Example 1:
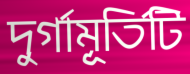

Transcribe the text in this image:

দুর্গামূর্তিটি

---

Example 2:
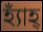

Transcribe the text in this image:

হ্যাঁহ্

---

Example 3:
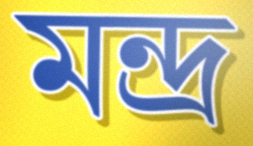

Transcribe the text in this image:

মন্দ্র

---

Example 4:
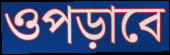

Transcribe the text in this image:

ওপড়াবে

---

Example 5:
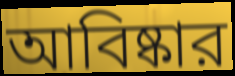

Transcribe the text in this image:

আবিষ্কার